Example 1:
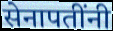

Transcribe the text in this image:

सेनापतींनी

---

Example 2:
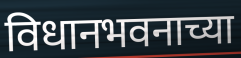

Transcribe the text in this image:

विधानभवनाच्या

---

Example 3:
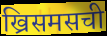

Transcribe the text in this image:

ख्रिसमसची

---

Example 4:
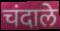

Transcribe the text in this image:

चंदाले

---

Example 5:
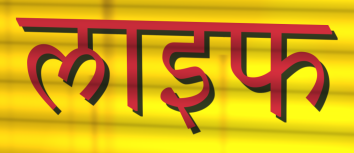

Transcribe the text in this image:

लाइफ